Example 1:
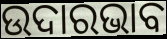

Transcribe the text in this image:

ଉଦାରଭାବ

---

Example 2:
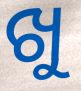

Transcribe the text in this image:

ଖୁ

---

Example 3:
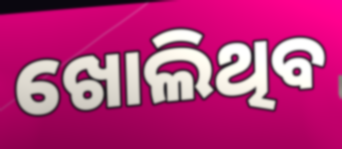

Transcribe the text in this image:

ଖୋଲିଥିବ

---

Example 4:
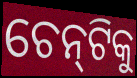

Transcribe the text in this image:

ଚେନ୍‌ଟିକୁ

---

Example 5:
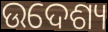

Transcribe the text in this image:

ଉଦେଶ୍ୟ